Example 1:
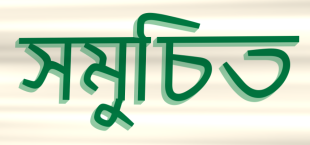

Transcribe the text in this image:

সমুচিত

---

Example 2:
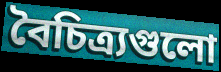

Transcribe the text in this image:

বৈচিত্র্যগুলো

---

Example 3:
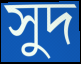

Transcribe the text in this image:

সুদ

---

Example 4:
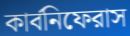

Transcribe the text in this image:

কার্বনিফেরাস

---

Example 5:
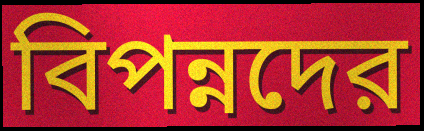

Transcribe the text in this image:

বিপন্নদের